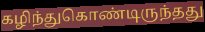
கழிந்துகொண்டிருந்தது